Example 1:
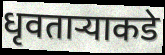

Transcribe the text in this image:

धृवतार्‍याकडे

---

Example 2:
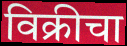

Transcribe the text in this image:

विक्रीचा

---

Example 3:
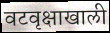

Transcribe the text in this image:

वटवृक्षाखाली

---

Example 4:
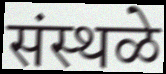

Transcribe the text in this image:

संस्थळे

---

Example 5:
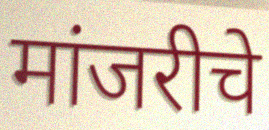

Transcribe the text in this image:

मांजरीचे